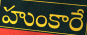
హుంకారే